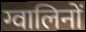
ग्वालिनों